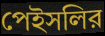
পেইসলির